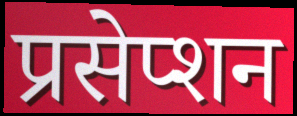
प्रसेप्शन